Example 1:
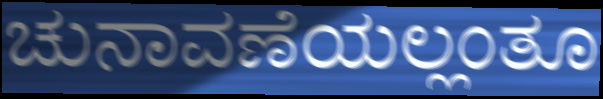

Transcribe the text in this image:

ಚುನಾವಣೆಯಲ್ಲಂತೂ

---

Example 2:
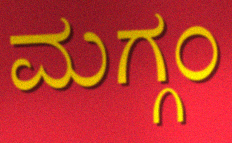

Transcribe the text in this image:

ಮಗ್ಗಂ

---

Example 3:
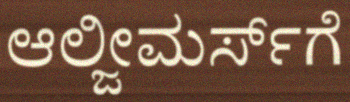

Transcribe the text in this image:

ಆಲ್ಜೀಮರ್ಸ್‌ಗೆ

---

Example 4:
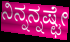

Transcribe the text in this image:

ನಿನ್ನನ್ನಷ್ಟೇ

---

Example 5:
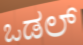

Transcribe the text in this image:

ಒಡಲ್